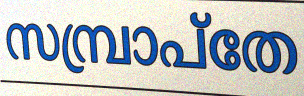
സമ്പ്രാപ്തേ